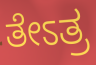
ತೇಽತ್ರ